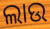
ଲାଉ